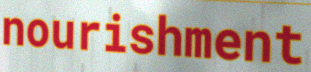
nourishment